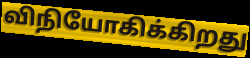
விநியோகிக்கிறது